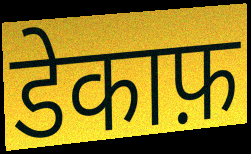
डेकाफ़